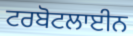
ਟਰਬੋਟਲਾਈਨ